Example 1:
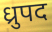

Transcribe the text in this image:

ध्रुपद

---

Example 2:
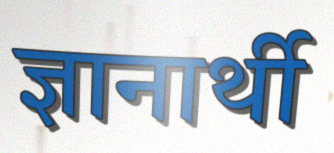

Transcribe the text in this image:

ज्ञानार्थी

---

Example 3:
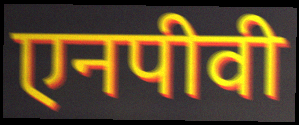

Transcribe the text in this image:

एनपीवी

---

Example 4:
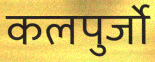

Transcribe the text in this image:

कलपुर्जो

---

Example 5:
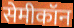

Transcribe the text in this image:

सेमीकॉन